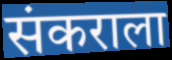
संकराला